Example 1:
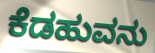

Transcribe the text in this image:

ಕೆಡಹುವನು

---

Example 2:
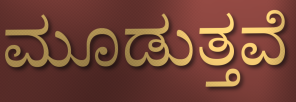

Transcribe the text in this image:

ಮೂಡುತ್ತವೆ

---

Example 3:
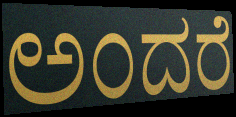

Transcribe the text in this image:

ಅಂದರೆ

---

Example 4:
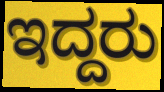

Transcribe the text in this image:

ಇದ್ದರು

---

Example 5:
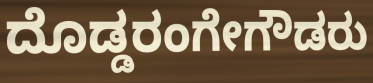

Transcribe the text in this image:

ದೊಡ್ಡರಂಗೇಗೌಡರು